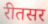
रीतसर